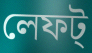
লেফট্